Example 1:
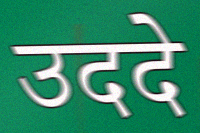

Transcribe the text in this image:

उददे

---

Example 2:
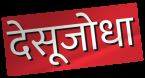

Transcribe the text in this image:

देसूजोधा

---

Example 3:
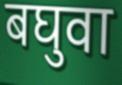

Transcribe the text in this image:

बघुवा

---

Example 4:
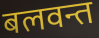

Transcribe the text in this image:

बलवन्‍त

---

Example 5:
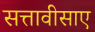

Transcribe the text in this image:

सत्तावीसाए